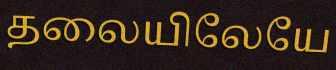
தலையிலேயே